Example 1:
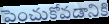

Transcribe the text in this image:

పెంచుకోవడానికి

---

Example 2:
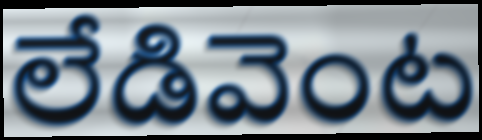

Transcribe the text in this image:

లేడివెంట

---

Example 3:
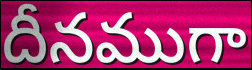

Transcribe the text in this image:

దీనముగా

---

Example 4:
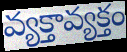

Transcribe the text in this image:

వ్యక్తావ్యక్తం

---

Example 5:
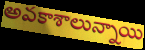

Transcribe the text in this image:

అవకాశాలున్నాయి